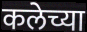
कलेच्या